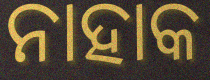
ନାହାକ